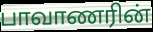
பாவாணரின்